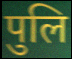
पुलि